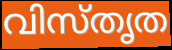
വിസ്തൃത